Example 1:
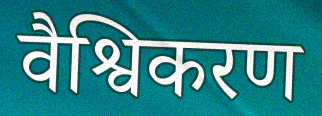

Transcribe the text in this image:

वैश्विकरण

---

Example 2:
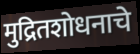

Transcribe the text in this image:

मुद्रितशोधनाचे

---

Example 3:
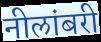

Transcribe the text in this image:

नीलांबरी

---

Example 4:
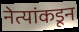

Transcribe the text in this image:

नेत्यांकडून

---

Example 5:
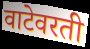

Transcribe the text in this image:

वाटेवरती